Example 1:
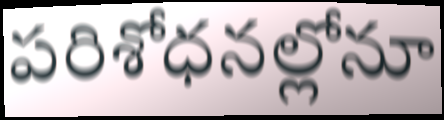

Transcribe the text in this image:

పరిశోధనల్లోనూ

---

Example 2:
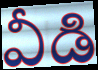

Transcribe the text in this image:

వీడి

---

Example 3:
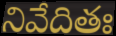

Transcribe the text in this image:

నివేదితః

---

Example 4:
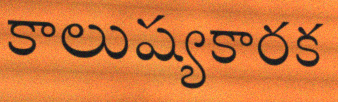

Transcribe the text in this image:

కాలుష్యకారక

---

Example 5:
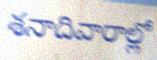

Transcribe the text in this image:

శనాదివారాల్లో